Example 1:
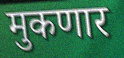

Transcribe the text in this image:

मुकणार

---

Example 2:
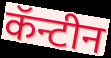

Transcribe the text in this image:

कॅन्टीन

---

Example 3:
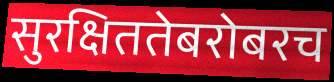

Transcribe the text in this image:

सुरक्षिततेबरोबरच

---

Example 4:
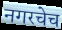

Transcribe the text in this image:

नगरचेच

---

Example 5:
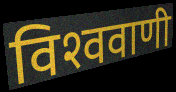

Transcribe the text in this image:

विश्ववाणी